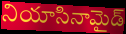
నియాసినామైడ్